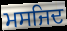
ਮਸਜਿਦ